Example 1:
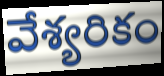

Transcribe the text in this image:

వేశ్యరికం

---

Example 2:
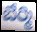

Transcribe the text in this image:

బేర్మి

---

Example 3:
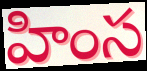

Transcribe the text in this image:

హింస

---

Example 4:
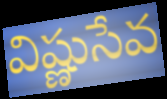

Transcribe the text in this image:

విష్ణుసేవ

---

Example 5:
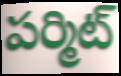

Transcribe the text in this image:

పర్మిట్